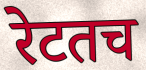
रेटतच